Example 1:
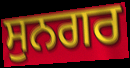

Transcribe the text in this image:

ਸੁਨਗਰ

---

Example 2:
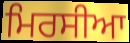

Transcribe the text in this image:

ਮਿਰਸੀਆ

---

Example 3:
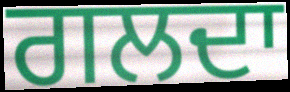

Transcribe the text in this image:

ਗਲਦਾ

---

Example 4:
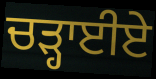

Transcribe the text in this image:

ਚੜ੍ਹਾਈਏ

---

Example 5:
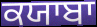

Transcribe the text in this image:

ਕਯਾਬਾ